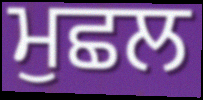
ਮੁਛਲ